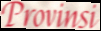
Provinsi